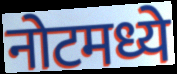
नोटमध्ये